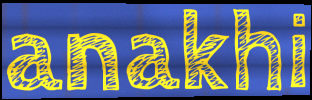
anakhi